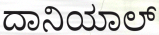
ದಾನಿಯಾಲ್